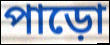
পাড়ো